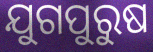
ଯୁଗପୁରୁଷ